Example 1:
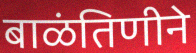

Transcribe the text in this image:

बाळंतिणीने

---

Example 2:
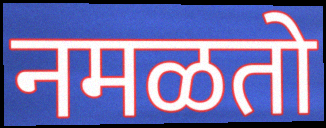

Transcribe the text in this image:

नमळतो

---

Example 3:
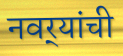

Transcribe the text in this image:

नवर्यांची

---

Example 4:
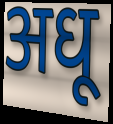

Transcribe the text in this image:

अधू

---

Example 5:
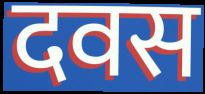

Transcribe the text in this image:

दवस